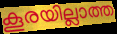
കൂരയില്ലാത്ത